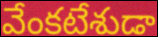
వేంకటేశుడా